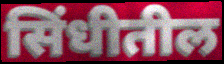
सिंधीतील